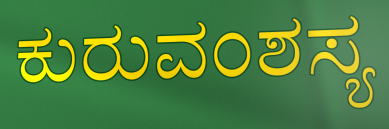
ಕುರುವಂಶಸ್ಯ